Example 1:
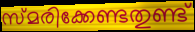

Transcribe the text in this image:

സ്മരിക്കേണ്ടതുണ്ട്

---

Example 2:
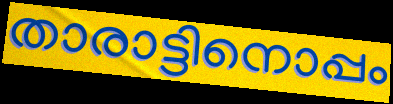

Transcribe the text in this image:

താരാട്ടിനൊപ്പം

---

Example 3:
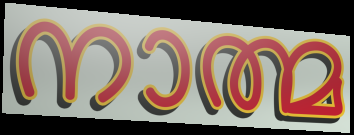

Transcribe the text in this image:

നാത്മ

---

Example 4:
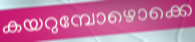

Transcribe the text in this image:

കയറുമ്പോഴൊക്കെ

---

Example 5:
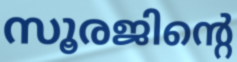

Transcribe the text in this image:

സൂരജിന്റെ